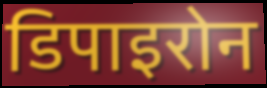
डिपाइरोन